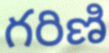
గరిణి